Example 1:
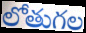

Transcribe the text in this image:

లోతుగల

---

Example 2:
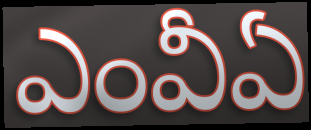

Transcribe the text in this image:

ఎంవీఏ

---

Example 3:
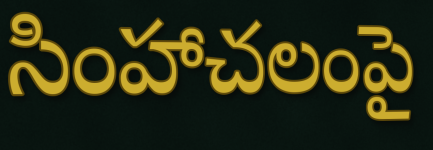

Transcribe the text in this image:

సింహాచలంపై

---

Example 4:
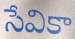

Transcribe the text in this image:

సేవికా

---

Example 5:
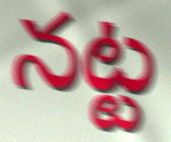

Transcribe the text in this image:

నట్ట